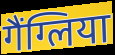
गैंग्लिया